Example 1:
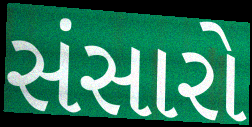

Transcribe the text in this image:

સંસારો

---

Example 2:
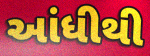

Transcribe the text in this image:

આંધીથી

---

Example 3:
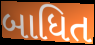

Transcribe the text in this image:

બાધિત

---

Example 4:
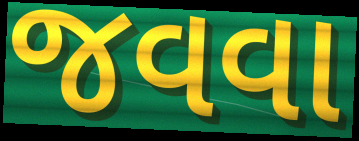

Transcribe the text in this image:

જવવા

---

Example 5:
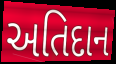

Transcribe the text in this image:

અતિદાન